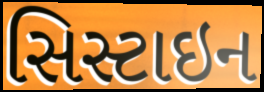
સિસ્ટાઇન